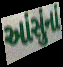
આંસુંનાં